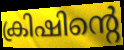
ക്രിഷിന്റെ